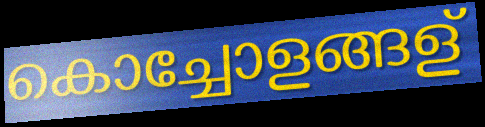
കൊച്ചോളങ്ങള്